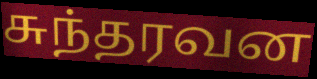
சுந்தரவன